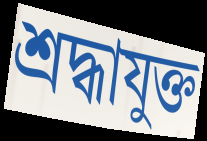
শ্রদ্ধাযুক্ত